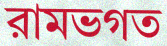
রামভগত